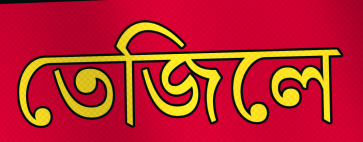
তেজিলে